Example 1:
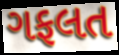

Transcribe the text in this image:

ગફલત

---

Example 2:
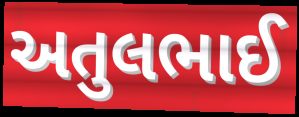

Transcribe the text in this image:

અતુલભાઈ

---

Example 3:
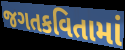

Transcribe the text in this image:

જગતકવિતામાં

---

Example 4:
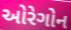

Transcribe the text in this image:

ઓરેગોન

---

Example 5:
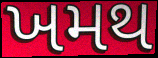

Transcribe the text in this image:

ખમથ